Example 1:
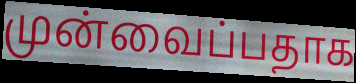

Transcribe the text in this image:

முன்வைப்பதாக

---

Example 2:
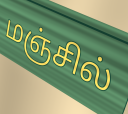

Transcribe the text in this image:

மஞ்சில்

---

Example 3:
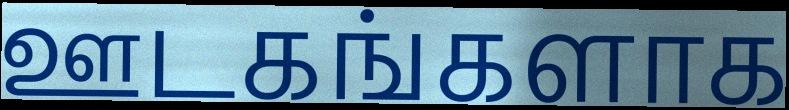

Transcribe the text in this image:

ஊடகங்களாக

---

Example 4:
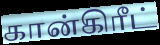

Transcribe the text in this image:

கான்கிரீட்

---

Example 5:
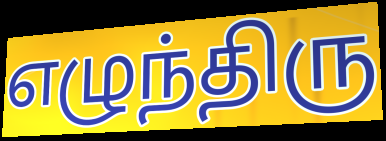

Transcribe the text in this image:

எழுந்திரு